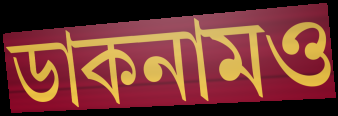
ডাকনামও